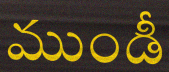
ముండీ